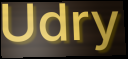
Udry